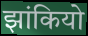
झांकियो